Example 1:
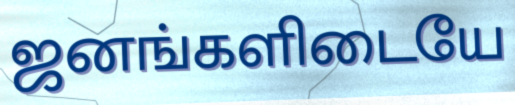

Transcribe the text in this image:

ஜனங்களிடையே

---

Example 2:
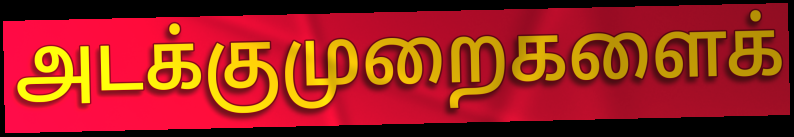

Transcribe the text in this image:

அடக்குமுறைகளைக்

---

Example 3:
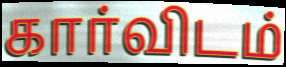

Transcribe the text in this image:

கார்விடம்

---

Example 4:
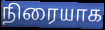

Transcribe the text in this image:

நிரையாக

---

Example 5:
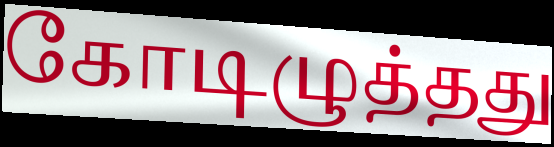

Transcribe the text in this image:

கோடிழுத்தது